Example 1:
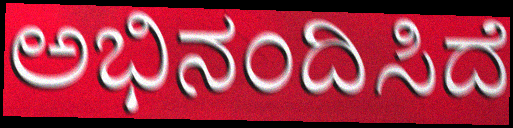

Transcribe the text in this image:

ಅಭಿನಂದಿಸಿದೆ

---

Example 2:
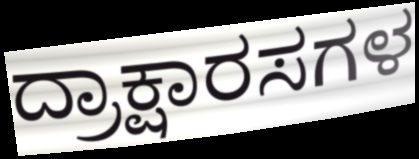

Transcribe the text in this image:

ದ್ರಾಕ್ಷಾರಸಗಳ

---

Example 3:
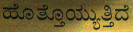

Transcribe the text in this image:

ಹೊತ್ತೊಯ್ಯುತ್ತಿದೆ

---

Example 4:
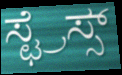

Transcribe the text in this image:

ಸ್ಟ್ರೆಸ್ಸ್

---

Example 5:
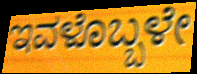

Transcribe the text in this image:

ಇವಳೊಬ್ಬಳೇ